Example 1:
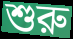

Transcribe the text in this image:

শুরু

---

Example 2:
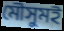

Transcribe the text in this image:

মৌসুমই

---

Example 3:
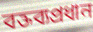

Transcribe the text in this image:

বক্তব্যপ্রধান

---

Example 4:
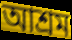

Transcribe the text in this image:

আশ্রম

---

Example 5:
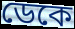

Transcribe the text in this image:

ডেকে